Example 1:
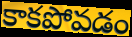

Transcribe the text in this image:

కాకపోవడం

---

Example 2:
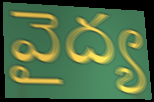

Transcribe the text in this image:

వైద్య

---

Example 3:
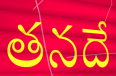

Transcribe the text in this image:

తనదే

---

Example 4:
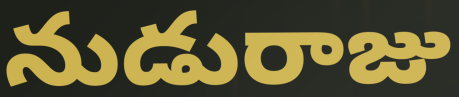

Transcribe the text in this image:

నుడురాజు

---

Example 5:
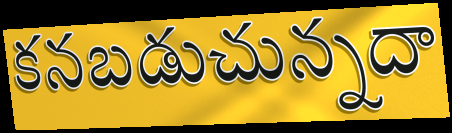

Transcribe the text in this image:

కనబడుచున్నదా